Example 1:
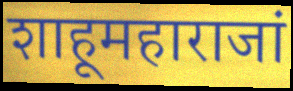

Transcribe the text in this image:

शाहूमहाराजां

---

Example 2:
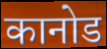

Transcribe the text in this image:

कानोड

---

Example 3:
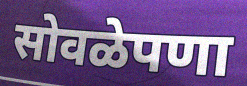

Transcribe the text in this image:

सोवळेपणा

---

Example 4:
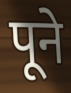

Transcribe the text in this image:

पूने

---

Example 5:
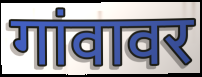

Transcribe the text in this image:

गांवावर